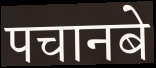
पचानबे